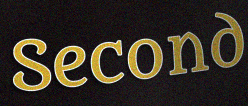
Second